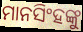
ମାନସିଂହଙ୍କୁ